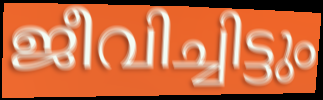
ജീവിച്ചിട്ടും